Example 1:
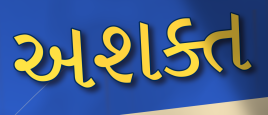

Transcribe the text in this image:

અશક્ત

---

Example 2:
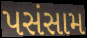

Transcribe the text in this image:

પસંસામ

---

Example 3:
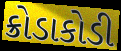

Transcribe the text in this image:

ક્રોડાકોડી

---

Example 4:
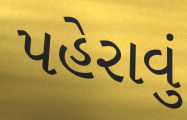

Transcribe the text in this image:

પહેરાવું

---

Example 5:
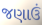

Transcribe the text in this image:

જણાઉં